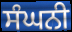
ਸੰਘਨੀ